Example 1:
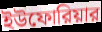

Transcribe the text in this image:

ইউফোরিয়ার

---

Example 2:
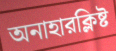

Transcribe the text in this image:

অনাহারক্লিষ্ট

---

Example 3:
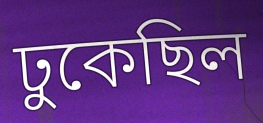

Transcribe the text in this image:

ঢুকেছিল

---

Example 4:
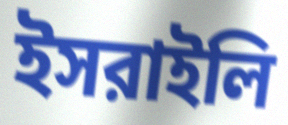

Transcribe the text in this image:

ইসরাইলি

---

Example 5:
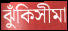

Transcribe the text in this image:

ঝুঁকিসীমা